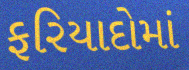
ફરિયાદોમાં